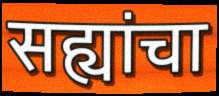
सह्यांचा